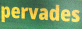
pervades